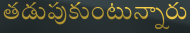
తడుపుకుంటున్నారు